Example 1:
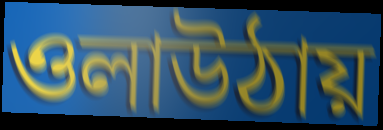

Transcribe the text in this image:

ওলাউঠায়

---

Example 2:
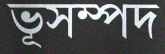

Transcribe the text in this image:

ভূসম্পদ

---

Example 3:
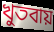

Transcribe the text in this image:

খুতবায়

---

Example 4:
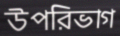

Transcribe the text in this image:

উপরিভাগ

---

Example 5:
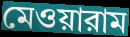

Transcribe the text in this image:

মেওয়ারাম